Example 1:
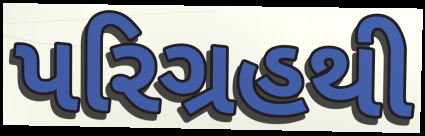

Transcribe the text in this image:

પરિગ્રહથી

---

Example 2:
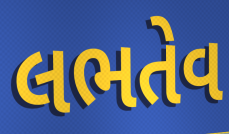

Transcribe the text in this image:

લભતેવ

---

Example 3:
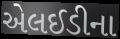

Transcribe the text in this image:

એલઈડીના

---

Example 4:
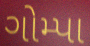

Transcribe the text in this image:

ગોમ્પા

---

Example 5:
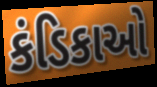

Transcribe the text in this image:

કંડિકાઓ